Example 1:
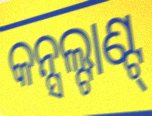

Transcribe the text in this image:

କନ୍ସଲ୍ଟାଣ୍ଟ୍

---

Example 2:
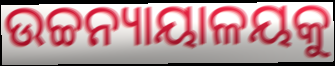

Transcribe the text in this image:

ଉଚ୍ଚନ୍ୟାୟାଳୟକୁ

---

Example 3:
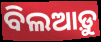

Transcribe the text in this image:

ବିଲଆଡ଼ୁ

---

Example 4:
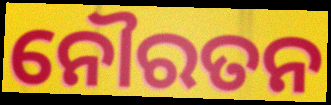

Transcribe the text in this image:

ନୌରତନ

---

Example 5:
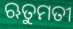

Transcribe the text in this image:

ଋତୁମତୀ